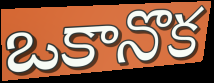
ఒకానొక